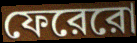
ফেরেরো